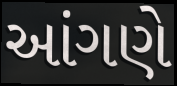
આંગણે